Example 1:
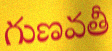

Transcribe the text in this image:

గుణవతీ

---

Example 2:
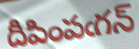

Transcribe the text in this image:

దీపింపఁగన్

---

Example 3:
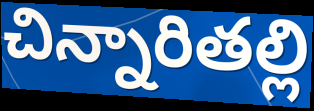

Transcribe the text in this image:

చిన్నారితల్లి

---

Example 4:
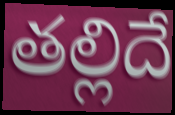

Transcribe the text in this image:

తల్లిదే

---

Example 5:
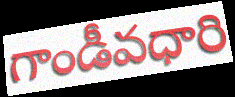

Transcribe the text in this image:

గాండీవధారి